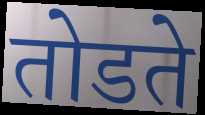
तोडते